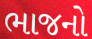
ભાજનો